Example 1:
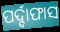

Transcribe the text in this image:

ପର୍ଦ୍ଦାଫାସ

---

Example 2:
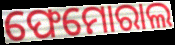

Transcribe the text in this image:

ଫେମୋରାଲ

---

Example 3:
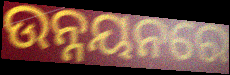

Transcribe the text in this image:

ଉନ୍ନୟନରେ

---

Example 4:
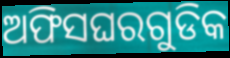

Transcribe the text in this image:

ଅଫିସଘରଗୁଡିକ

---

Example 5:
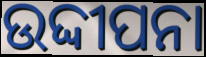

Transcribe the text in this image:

ଉଦ୍ଦୀପନା